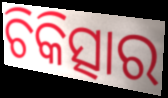
ଚିକିତ୍ସାର